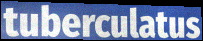
tuberculatus